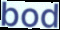
bod